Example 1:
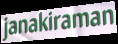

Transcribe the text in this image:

janakiraman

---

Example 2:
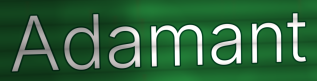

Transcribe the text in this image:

Adamant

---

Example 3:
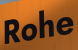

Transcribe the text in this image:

Rohe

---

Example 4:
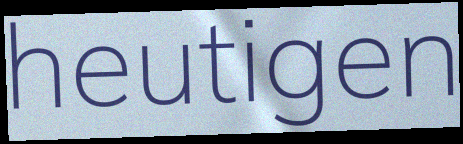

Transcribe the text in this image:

heutigen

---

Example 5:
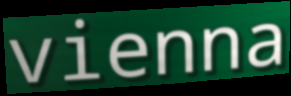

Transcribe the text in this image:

vienna